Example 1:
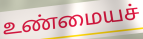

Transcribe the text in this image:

உண்மையச்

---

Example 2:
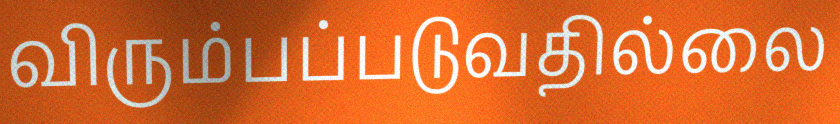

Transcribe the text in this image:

விரும்பப்படுவதில்லை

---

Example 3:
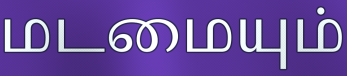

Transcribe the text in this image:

மடமையும்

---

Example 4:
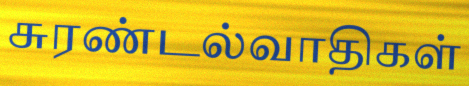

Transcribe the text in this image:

சுரண்டல்வாதிகள்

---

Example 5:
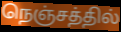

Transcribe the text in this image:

நெஞ்சத்தில்